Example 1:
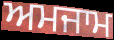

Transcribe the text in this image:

ਅਮਜਾਮ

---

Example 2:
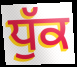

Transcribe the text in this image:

ਧੁੱਕ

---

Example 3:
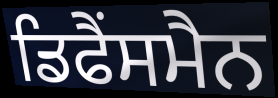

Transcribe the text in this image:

ਡਿਫੈਂਸਮੈਨ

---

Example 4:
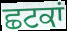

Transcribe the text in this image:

ਛਟਕਾਂ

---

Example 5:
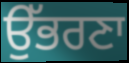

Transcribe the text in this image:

ਉੱਭਰਣਾ